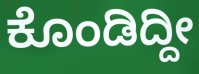
ಕೊಂಡಿದ್ದೀ